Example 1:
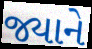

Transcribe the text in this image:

જ્યાને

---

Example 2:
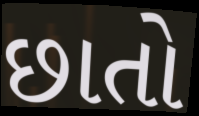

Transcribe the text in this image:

છાતો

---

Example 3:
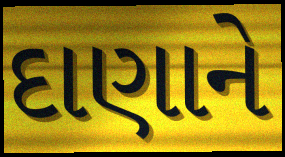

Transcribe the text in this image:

દાણાને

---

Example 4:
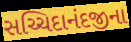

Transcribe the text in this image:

સચ્ચિદાનંદજીના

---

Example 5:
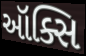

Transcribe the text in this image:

ઑક્સિ